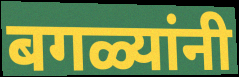
बगळ्यांनी